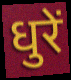
धुरें